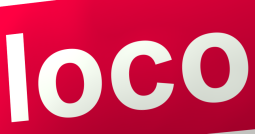
loco